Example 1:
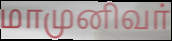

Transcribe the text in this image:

மாமுனிவர்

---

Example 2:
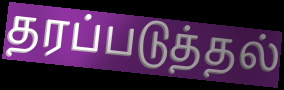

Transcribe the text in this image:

தரப்படுத்தல்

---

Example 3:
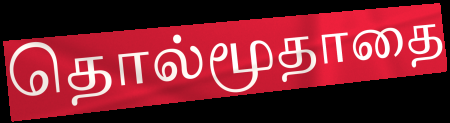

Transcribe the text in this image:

தொல்மூதாதை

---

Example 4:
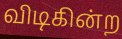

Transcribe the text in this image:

விடிகின்ற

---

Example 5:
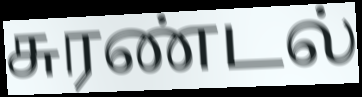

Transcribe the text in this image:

சுரண்டல்